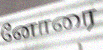
னோரை